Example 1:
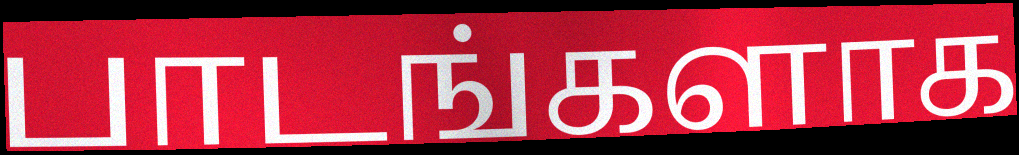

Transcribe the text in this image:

பாடங்களாக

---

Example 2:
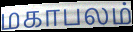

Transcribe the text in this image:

மகாபலம்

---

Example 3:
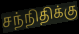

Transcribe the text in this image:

சந்நிதிக்கு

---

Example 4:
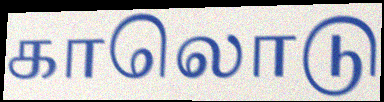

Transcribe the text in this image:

காலொடு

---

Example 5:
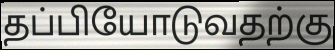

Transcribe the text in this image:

தப்பியோடுவதற்கு